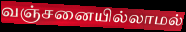
வஞ்சனையில்லாமல்